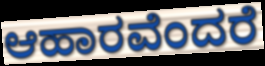
ಆಹಾರವೆಂದರೆ